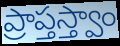
ప్రాప్తస్త్వాం